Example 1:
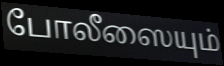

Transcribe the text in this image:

போலீஸையும்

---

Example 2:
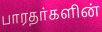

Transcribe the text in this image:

பாரதர்களின்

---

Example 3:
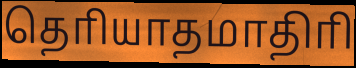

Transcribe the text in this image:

தெரியாதமாதிரி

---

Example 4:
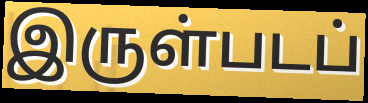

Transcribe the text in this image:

இருள்படப்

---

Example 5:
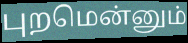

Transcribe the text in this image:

புறமென்னும்